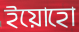
ইয়োহো